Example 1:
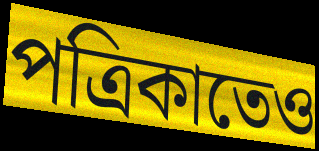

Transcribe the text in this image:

পত্রিকাতেও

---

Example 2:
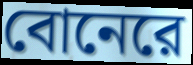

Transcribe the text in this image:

বোনেরে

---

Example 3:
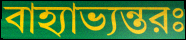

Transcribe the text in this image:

বাহ্যাভ্যন্তরঃ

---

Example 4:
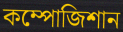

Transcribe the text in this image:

কম্পোজিশান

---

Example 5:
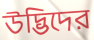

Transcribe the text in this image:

উদ্ভিদের